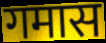
गमास